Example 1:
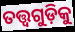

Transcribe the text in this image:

ତତ୍ତ୍ୱଗୁଡ଼ିକୁ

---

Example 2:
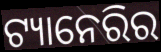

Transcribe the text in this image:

ଟ୍ୟାନେରିର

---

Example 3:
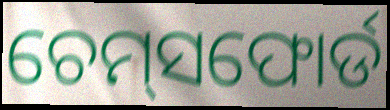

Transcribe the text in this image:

ଚେମ୍‌ସଫୋର୍ଡ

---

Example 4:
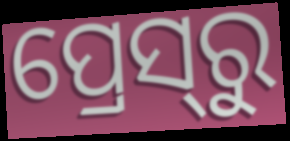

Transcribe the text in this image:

ପ୍ରେସ୍‌ରୁ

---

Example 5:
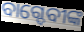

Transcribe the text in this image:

ବାଗ୍ଦେବୀଙ୍କ